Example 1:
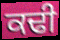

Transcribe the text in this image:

ਕਢੀ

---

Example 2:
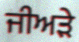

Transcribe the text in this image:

ਜੀਅੜੇ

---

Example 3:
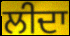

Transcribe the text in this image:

ਲੀਦਾ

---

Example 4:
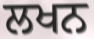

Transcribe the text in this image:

ਲਖਨ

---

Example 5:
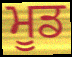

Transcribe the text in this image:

ਮੂਡ